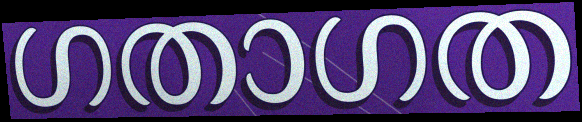
ഗതാഗത